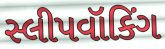
સ્લીપવૉકિંગ